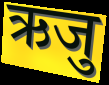
ऋजु